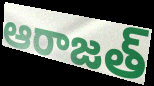
ఆరాజత్